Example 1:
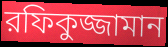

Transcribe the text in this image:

রফিকুজ্জামান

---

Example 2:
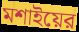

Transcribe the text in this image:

মশাইয়ের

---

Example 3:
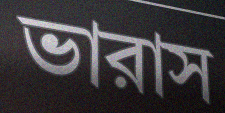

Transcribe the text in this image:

ভারাস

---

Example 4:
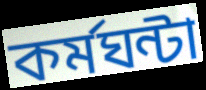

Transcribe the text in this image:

কর্মঘন্টা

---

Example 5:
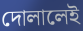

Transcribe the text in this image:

দোলালেই